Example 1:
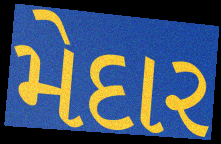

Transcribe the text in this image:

મેદાર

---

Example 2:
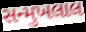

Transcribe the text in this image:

સન્મુખલાલ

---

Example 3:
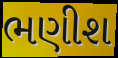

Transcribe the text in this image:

ભણીશ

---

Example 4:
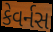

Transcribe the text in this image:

કેવર્નસ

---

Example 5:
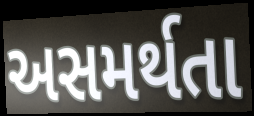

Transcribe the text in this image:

અસમર્થતા